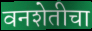
वनशेतीचा